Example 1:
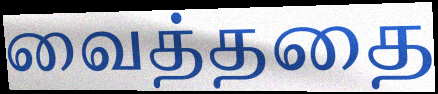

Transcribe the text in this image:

வைத்ததை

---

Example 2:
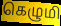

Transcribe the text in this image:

கெழுமி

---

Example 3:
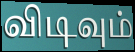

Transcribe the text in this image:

விடிவும்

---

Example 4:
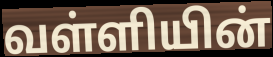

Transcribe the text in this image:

வள்ளியின்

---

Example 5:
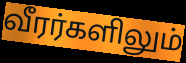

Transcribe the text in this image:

வீரர்களிலும்